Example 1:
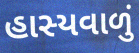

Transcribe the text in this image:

હાસ્યવાળું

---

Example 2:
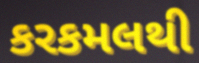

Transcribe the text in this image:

કરકમલથી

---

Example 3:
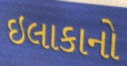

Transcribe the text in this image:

ઇલાકાનો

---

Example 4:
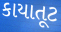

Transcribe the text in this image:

કાયાતૂટ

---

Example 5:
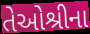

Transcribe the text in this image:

તેઓશ્રીના